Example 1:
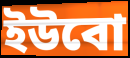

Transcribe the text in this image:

ইউবো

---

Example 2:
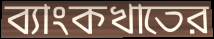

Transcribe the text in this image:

ব্যাংকখাতের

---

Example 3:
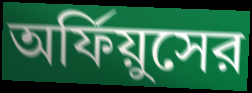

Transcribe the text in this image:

অর্ফিয়ুসের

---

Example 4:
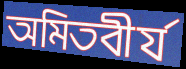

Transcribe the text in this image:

অমিতবীর্য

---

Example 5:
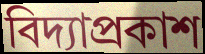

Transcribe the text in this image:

বিদ্যাপ্রকাশ